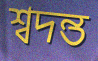
শ্বদন্ত